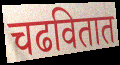
चढवितात